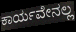
ಕಾರ್ಯವೇನಲ್ಲ